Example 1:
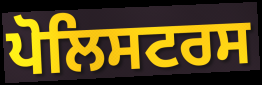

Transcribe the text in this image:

ਪੋਲਿਸਟਰਸ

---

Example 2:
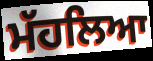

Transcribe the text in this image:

ਮੱਹਲਿਆ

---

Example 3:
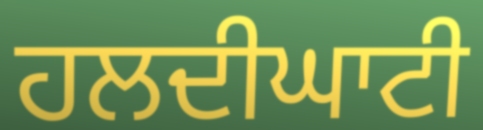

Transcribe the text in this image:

ਹਲਦੀਘਾਟੀ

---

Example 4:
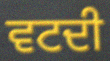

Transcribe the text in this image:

ਵਟਦੀ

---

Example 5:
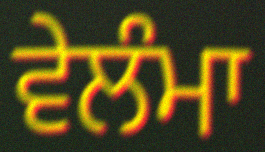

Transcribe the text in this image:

ਵੇਲੰਮਾ